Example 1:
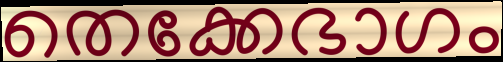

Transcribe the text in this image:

തെക്കേഭാഗം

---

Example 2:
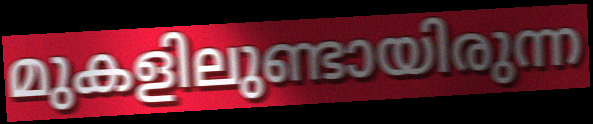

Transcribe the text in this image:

മുകളിലുണ്ടായിരുന്ന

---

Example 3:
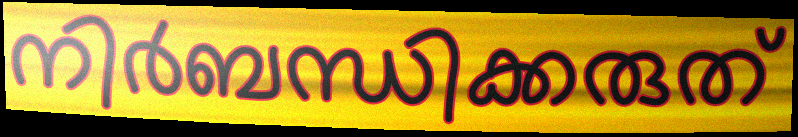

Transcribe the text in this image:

നിർബന്ധിക്കരുത്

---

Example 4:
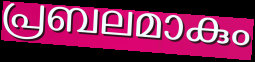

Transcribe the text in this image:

പ്രബലമാകും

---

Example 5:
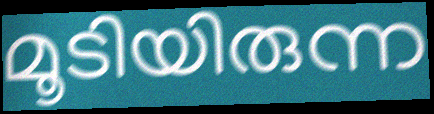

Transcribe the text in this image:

മൂടിയിരുന്ന